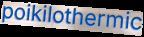
poikilothermic